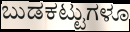
ಬುಡಕಟ್ಟುಗಳೂ